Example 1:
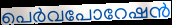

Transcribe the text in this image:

പെർവപോറേഷൻ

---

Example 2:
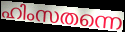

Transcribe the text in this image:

ഹിംസതന്നെ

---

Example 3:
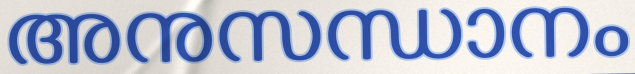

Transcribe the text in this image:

അനുസന്ധാനം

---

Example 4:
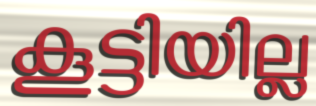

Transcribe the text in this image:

കൂട്ടിയില്ല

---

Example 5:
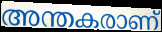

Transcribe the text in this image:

അന്തകരാണ്